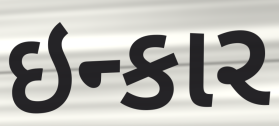
ઇન્કાર